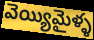
వెయ్యిమైళ్ళ